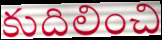
కుదిలించి